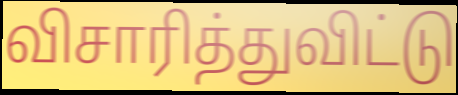
விசாரித்துவிட்டு